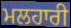
ਮਲਹਾਰੀ